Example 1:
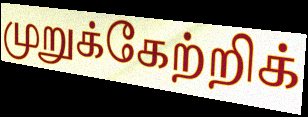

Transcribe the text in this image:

முறுக்கேற்றிக்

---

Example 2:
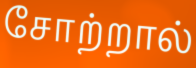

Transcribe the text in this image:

சோற்றால்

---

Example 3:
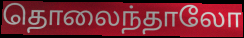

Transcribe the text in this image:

தொலைந்தாலோ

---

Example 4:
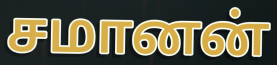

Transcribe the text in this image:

சமானன்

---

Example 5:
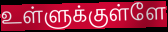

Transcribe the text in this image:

உள்ளுக்குள்ளே